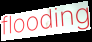
flooding